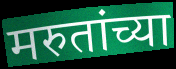
मरुतांच्या